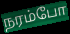
நரம்போ